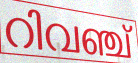
റിവഞ്ച്